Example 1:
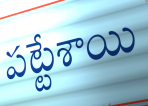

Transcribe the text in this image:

పట్టేశాయి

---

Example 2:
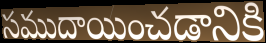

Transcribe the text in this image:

సముదాయించడానికి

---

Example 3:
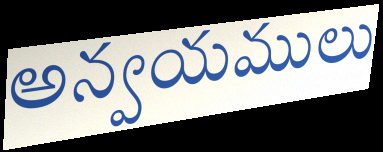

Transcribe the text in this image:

అన్వయములు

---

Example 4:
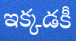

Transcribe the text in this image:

ఇక్కడకీ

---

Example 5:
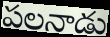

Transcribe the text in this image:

పలనాడు